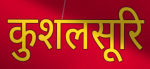
कुशलसूरि